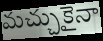
మచ్చుకైనా